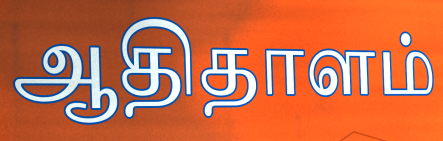
ஆதிதாளம்